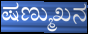
ಷಣ್ಮುಖನ